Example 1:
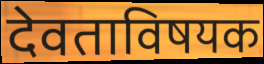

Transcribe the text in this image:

देवताविषयक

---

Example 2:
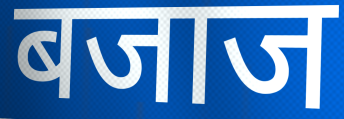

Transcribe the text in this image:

बजाज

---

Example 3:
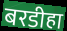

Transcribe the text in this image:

बरडीहा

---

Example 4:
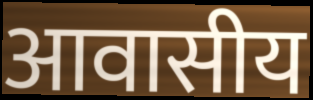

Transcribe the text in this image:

आवासीय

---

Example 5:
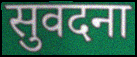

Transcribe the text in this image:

सुवदना